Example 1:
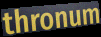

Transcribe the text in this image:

thronum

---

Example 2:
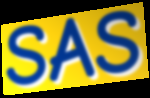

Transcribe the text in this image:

SAS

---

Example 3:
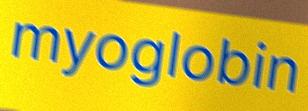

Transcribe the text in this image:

myoglobin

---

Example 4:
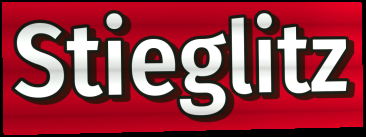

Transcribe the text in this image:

Stieglitz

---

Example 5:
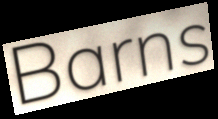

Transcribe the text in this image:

Barns